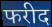
फरीद